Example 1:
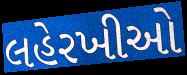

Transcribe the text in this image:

લહેરખીઓ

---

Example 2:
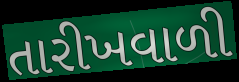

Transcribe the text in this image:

તારીખવાળી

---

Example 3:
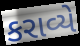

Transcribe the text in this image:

કરાવ્યે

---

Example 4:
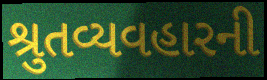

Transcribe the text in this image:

શ્રુતવ્યવહારની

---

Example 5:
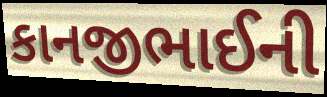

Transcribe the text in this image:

કાનજીભાઈની